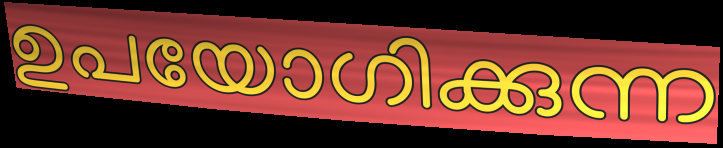
ഉപയോഗിക്കുന്ന